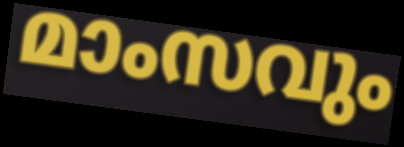
മാംസവും